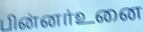
பின்னர்உனை